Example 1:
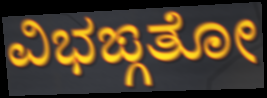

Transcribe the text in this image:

ವಿಭಙ್ಗತೋ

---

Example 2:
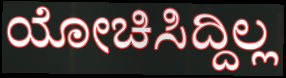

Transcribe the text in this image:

ಯೋಚಿಸಿದ್ದಿಲ್ಲ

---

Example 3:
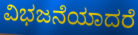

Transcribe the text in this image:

ವಿಭಜನೆಯಾದರೆ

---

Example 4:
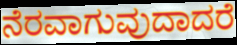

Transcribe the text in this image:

ನೆರವಾಗುವುದಾದರೆ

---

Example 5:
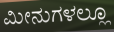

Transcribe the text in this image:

ಮೀನುಗಳಲ್ಲೂ